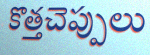
కొత్తచెప్పులు